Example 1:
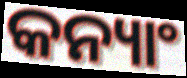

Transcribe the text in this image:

କନ୍ୟାଂ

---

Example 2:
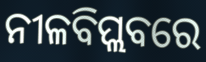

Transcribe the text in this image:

ନୀଳବିପ୍ଲବରେ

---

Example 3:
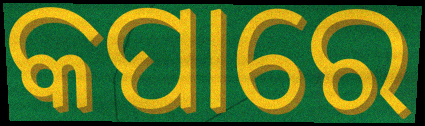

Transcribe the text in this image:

କପାରେ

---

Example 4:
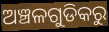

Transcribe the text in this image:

ଅଞ୍ଚଳଗୁଡିକରୁ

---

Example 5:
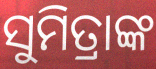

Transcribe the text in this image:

ସୁମିତ୍ରାଙ୍କ